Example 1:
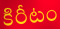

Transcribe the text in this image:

కిరీటం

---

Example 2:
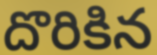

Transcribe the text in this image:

దొరికిన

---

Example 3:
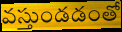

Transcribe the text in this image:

వస్తుండడంతో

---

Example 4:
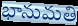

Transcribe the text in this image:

భానుమతి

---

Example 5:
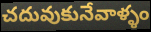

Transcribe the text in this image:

చదువుకునేవాళ్ళం